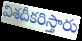
విశదీకరిస్తారు